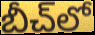
బీచ్‌లో